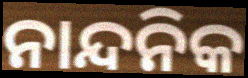
ନାନ୍ଦନିକ